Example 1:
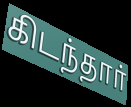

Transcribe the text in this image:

கிடந்தார்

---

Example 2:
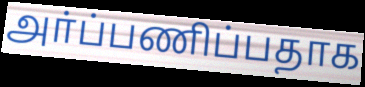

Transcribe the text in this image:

அர்ப்பணிப்பதாக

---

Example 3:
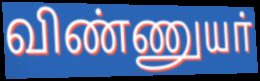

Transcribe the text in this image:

விண்ணுயர்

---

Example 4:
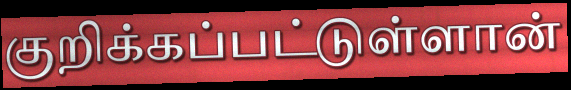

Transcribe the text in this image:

குறிக்கப்பட்டுள்ளான்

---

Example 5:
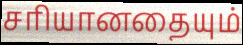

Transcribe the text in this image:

சரியானதையும்